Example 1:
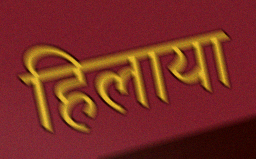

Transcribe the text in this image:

हिलाया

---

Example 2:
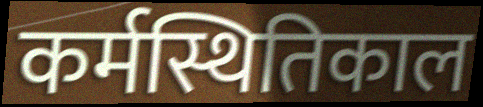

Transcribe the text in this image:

कर्मस्थितिकाल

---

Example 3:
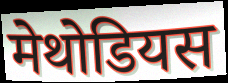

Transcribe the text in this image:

मेथोडियस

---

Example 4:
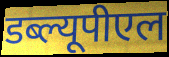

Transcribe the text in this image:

डब्ल्यूपीएल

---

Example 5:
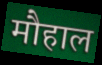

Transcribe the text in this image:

मौहाल